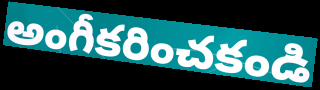
అంగీకరించకండి